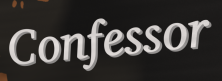
Confessor